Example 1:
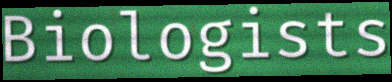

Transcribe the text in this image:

Biologists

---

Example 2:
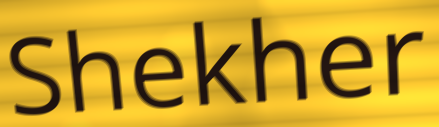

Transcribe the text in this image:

Shekher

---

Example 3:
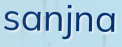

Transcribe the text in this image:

sanjna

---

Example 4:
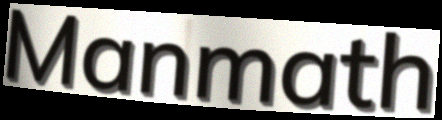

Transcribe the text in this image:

Manmath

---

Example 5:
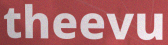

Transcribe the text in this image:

theevu